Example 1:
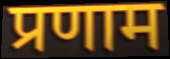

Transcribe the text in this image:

प्रणाम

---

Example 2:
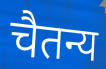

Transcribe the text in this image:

चैतन्य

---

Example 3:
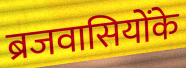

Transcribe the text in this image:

ब्रजवासियोंके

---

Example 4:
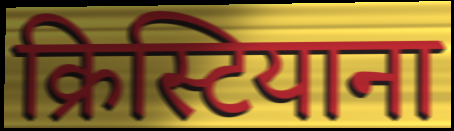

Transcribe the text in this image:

क्रिस्टियाना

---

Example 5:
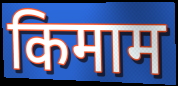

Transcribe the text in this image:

किमाम